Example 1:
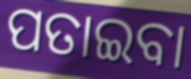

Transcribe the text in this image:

ପତାଇବା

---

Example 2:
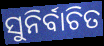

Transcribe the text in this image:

ସୁନିର୍ବାଚିତ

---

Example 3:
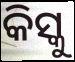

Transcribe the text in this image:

କିସ୍କୁ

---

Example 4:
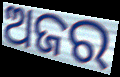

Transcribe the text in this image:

ଅଜର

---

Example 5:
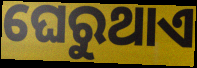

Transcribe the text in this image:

ଘେରୁଥାଏ